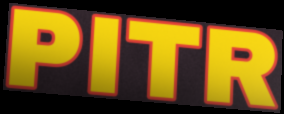
PITR